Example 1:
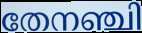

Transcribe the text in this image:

തേനഞ്ചി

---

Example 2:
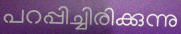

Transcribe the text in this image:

പറപ്പിച്ചിരിക്കുന്നു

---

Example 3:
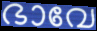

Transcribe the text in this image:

ഭാവേ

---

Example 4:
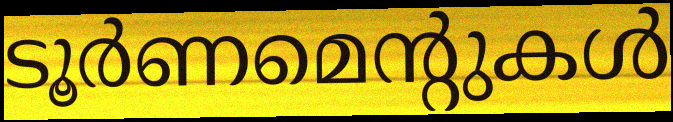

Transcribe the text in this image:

ടൂർണമെന്റുകൾ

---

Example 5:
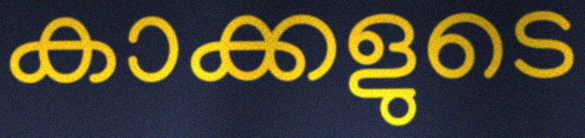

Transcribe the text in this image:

കാക്കളുടെ